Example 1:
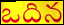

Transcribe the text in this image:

ఒదిన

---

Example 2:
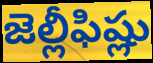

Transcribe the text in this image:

జెల్లీఫిష్లు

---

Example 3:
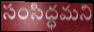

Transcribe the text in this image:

సంసిద్ధమని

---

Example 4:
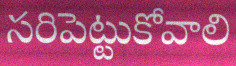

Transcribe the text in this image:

సరిపెట్టుకోవాలి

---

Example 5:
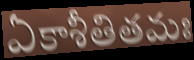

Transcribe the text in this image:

ఏకాశీతితమః